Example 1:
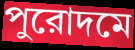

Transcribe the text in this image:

পুরোদমে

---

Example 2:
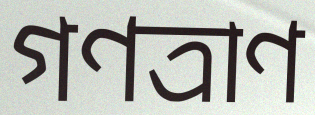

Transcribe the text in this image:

গণত্রাণ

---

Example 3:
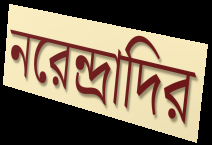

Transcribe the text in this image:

নরেন্দ্রাদির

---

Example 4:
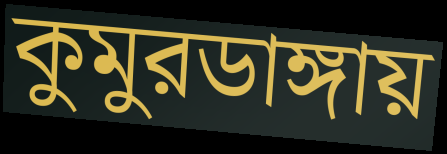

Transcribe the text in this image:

কুমুরডাঙ্গায়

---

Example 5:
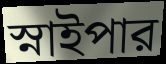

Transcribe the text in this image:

স্নাইপার